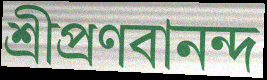
শ্রীপ্রণবানন্দ